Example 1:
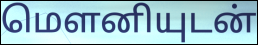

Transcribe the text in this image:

மௌனியுடன்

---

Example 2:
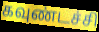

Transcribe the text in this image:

கவுண்டச்சி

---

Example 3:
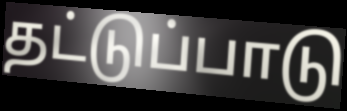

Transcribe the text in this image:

தட்டுப்பாடு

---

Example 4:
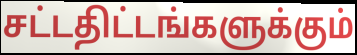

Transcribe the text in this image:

சட்டதிட்டங்களுக்கும்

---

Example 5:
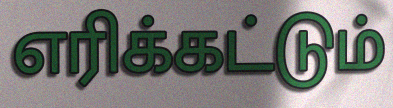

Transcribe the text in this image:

எரிக்கட்டும்